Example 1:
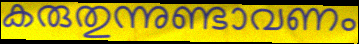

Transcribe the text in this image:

കരുതുന്നുണ്ടാവണം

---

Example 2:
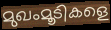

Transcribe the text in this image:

മുഖംമൂടികളെ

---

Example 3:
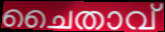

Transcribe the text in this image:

ചൈതാവ്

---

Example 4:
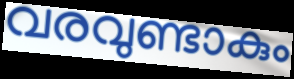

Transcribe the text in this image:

വരവുണ്ടാകും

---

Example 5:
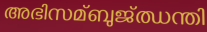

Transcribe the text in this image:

അഭിസമ്ബുജ്ഝന്തി